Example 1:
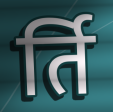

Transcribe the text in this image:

र्ति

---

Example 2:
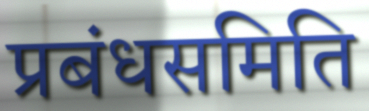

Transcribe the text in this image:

प्रबंधसमिति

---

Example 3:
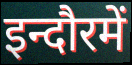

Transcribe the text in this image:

इन्दौरमें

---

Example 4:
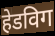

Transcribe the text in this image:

हेडविग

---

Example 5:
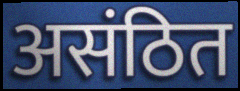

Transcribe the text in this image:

असंठित